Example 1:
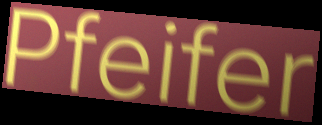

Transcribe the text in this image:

Pfeifer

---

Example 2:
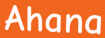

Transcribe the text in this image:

Ahana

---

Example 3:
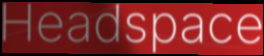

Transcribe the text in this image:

Headspace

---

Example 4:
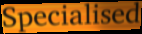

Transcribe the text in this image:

Specialised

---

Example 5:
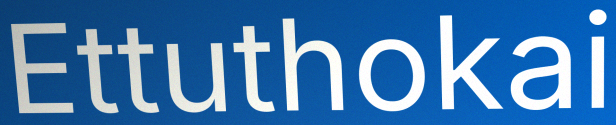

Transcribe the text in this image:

Ettuthokai